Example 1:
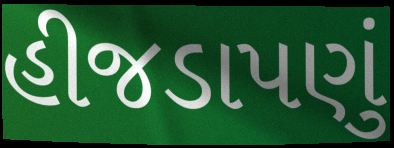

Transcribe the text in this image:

હીજડાપણું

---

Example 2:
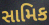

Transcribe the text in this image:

સામિક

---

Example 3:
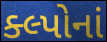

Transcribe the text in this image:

ક્લ્પોનાં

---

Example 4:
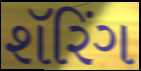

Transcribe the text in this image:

શૅરિંગ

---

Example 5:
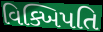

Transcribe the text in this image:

વિક્ખિપતિ